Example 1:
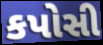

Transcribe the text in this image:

કપોસી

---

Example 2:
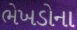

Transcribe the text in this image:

ભેખડોના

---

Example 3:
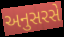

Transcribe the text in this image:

અનુસરસે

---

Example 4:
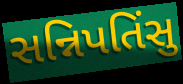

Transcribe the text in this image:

સન્નિપતિંસુ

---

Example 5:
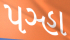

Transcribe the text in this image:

પઞ્હા